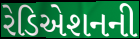
રેડિએશનની